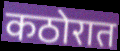
कठोरात